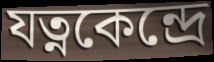
যত্নকেন্দ্রে